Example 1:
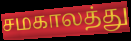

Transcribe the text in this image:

சமகாலத்து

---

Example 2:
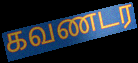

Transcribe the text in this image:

கவணடர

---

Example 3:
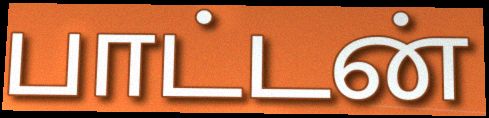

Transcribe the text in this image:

பாட்டன்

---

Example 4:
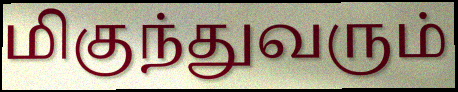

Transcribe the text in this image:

மிகுந்துவரும்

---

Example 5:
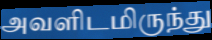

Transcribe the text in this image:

அவளிடமிருந்து